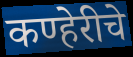
कण्हेरीचे